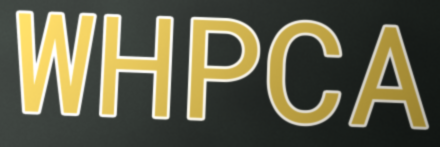
WHPCA